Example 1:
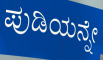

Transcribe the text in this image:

ಪುಡಿಯನ್ನೇ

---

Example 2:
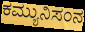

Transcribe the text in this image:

ಕಮ್ಯುನಿಸಂನ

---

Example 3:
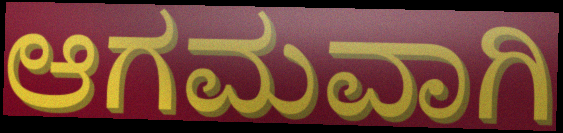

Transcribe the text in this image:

ಆಗಮವಾಗಿ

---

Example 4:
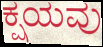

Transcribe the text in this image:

ಕ್ಷಯವು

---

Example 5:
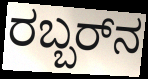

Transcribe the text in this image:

ರಬ್ಬರ್‌ನ